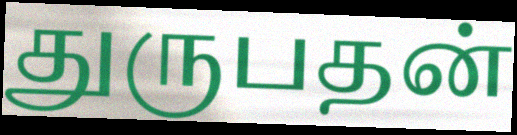
துருபதன்